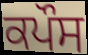
ਕਪੌਸ